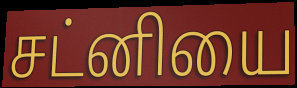
சட்னியை